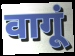
वागूं